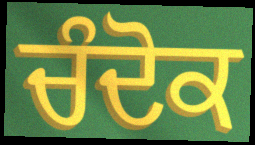
ਚੰਦੋਕ